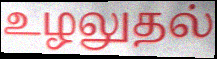
உழலுதல்